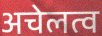
अचेलत्व